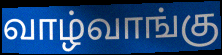
வாழ்வாங்கு